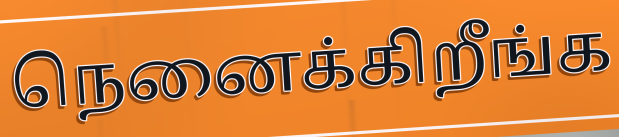
நெனைக்கிறீங்க